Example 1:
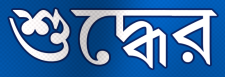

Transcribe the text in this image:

শুদ্ধের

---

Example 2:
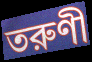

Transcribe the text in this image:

তরুণী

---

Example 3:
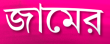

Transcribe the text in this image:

জামের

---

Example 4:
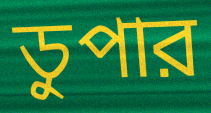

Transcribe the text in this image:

ডুপার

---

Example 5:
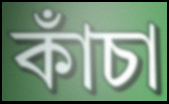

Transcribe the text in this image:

কাঁচা